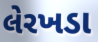
લેરખડા